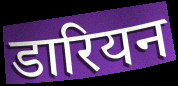
डारियन